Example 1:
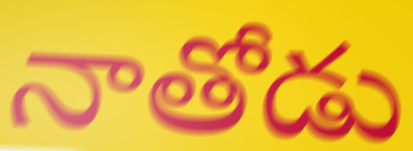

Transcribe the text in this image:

నాతోడు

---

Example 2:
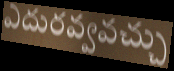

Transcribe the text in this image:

ఎదురవ్వవచ్చు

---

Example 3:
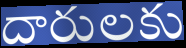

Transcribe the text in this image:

దారులకు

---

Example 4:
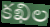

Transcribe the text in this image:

కఖిల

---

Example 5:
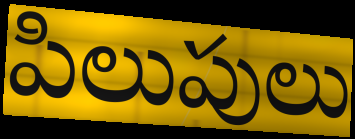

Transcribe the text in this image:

పిలుపులు